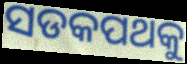
ସଡକପଥକୁ